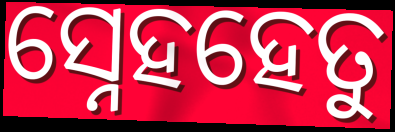
ସ୍ନେହହେତୁ